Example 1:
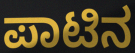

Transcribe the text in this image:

ಪಾಟಿನ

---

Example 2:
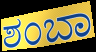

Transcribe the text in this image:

ಶಂಬಾ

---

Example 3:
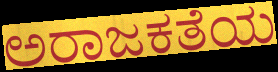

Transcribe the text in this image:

ಅರಾಜಕತೆಯ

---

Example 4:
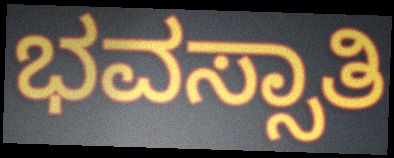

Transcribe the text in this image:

ಭವಸ್ಸಾತಿ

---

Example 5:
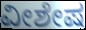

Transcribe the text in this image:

ವೀಶೇಷ